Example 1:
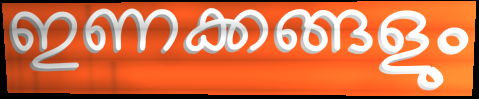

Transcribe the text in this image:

ഇണക്കങ്ങളും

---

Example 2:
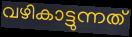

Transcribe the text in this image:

വഴികാട്ടുന്നത്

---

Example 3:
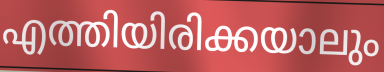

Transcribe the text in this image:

എത്തിയിരിക്കയാലും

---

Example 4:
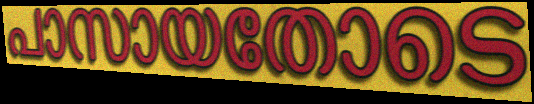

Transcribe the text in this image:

പാസായതോടെ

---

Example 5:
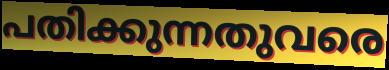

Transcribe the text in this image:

പതിക്കുന്നതുവരെ